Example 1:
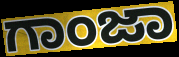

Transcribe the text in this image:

ಗಾಂಜಾ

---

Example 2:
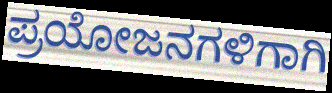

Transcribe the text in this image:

ಪ್ರಯೋಜನಗಳಿಗಾಗಿ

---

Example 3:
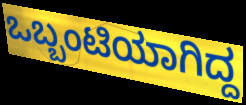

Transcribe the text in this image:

ಒಬ್ಬಂಟಿಯಾಗಿದ್ದ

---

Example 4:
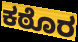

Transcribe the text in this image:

ಕಠೊರ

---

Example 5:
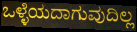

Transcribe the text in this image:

ಒಳ್ಳೆಯದಾಗುವುದಿಲ್ಲ